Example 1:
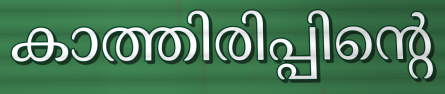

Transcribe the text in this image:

കാത്തിരിപ്പിന്റെ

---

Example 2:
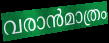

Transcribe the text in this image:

വരാൻമാത്രം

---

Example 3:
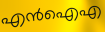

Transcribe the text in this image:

എൻഐഎ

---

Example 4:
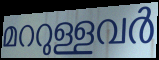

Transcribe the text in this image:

മററുള്ളവർ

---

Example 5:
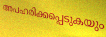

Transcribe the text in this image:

അപഹരിക്കപ്പെടുകയും